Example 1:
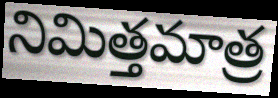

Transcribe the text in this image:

నిమిత్తమాత్ర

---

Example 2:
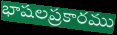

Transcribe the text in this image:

భాషలప్రకారము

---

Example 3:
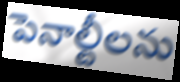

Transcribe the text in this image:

పెనాల్టీలను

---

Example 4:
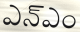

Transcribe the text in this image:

ఎన్ఎం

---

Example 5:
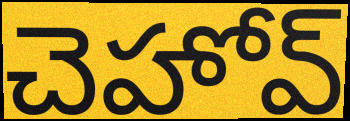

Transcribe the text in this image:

చెహోవ్